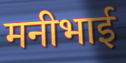
मनीभाई